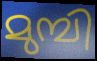
മുമ്പി